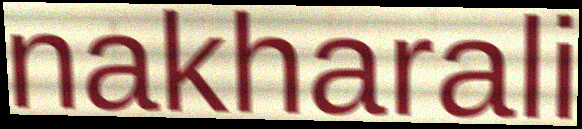
nakharali